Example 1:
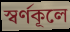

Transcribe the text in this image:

স্বর্ণকূলে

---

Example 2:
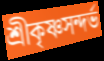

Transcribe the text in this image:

শ্রীকৃষ্ণসন্দর্ভ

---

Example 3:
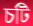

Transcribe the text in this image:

চটি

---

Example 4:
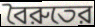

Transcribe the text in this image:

বৈরুতের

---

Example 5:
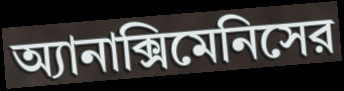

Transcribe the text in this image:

অ্যানাক্সিমেনিসের